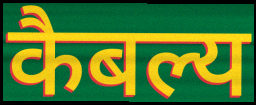
कैबल्य